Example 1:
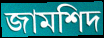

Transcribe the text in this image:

জামশিদ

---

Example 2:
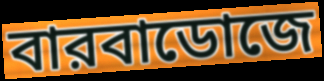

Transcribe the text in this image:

বারবাডোজে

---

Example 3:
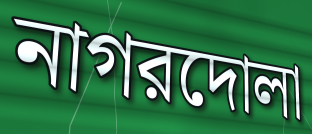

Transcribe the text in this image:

নাগরদোলা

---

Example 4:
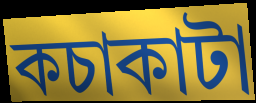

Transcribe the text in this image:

কচাকাটা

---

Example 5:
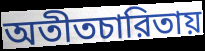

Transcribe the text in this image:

অতীতচারিতায়